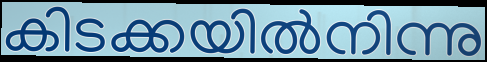
കിടക്കയിൽനിന്നു